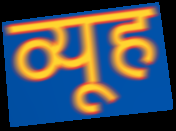
व्यूह